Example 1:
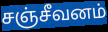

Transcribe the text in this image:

சஞ்சீவனம்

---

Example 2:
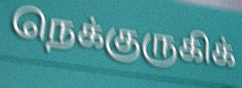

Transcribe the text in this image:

நெக்குருகிக்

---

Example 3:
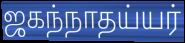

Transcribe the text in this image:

ஜகந்நாதய்யர்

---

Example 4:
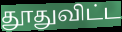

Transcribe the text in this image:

தூதுவிட்ட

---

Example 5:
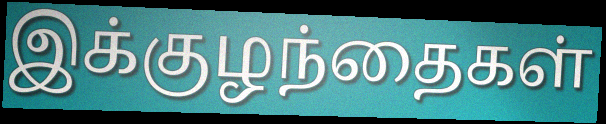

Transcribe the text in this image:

இக்குழந்தைகள்